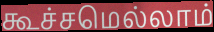
கூச்சமெல்லாம்